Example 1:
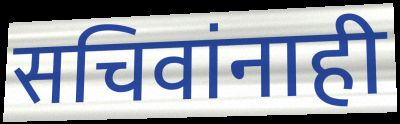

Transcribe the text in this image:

सचिवांनाही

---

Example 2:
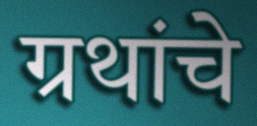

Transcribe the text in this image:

ग्रथांचे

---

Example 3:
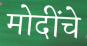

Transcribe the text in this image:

मोदींचे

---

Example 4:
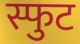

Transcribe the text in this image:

स्फुट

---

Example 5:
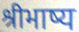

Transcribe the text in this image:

श्रीभाष्य